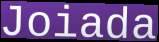
Joiada